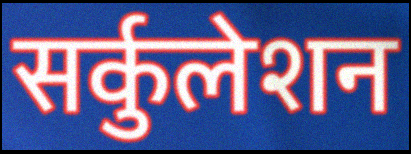
सर्कुलेशन